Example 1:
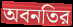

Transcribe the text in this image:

অবনতির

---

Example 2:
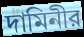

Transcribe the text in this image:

দামিনীর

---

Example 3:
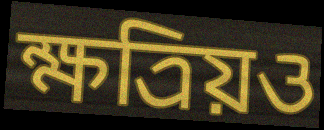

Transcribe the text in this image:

ক্ষত্রিয়ও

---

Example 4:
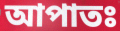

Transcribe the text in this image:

আপাতঃ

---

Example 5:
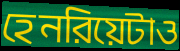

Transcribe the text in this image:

হেনরিয়েটাও